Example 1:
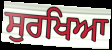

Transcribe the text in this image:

ਸੁਰਖਿਆ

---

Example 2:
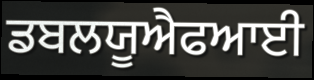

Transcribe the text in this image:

ਡਬਲਯੂਐਫਆਈ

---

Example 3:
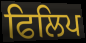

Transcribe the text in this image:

ਫਿਲਿਪ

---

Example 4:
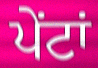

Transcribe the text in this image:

ਪੇਂਟਾਂ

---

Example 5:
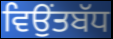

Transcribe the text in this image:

ਵਿਉਂਤਬੱਧ